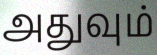
அதுவும்